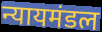
न्यायमंडल